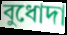
বুধোদা